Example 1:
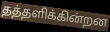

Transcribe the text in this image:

தத்தளிக்கின்றன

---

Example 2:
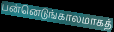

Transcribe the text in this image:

பன்னெடுங்காலமாகத்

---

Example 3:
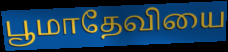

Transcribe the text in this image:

பூமாதேவியை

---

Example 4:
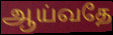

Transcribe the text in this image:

ஆய்வதே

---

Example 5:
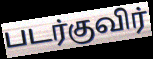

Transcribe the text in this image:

படர்குவிர்